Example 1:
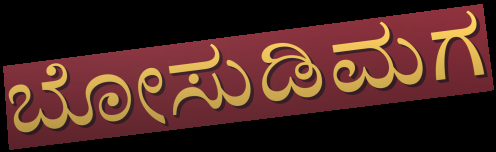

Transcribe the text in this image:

ಬೋಸುಡಿಮಗ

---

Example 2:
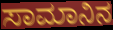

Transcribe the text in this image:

ಸಾಮಾನಿನ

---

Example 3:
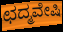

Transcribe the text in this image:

ಛದ್ಮವೇಷಿ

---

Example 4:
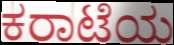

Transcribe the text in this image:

ಕರಾಟೆಯ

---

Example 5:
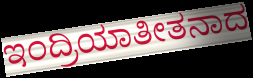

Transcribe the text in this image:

ಇಂದ್ರಿಯಾತೀತನಾದ